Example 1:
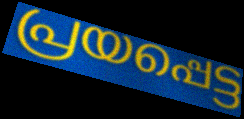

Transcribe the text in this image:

പ്രയപ്പെട്ട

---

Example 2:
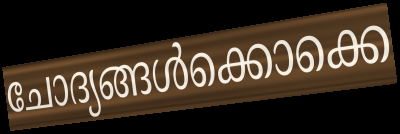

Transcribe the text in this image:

ചോദ്യങ്ങൾക്കൊക്കെ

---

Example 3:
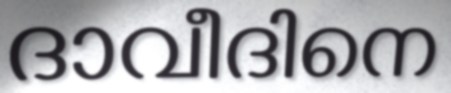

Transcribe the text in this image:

ദാവീദിനെ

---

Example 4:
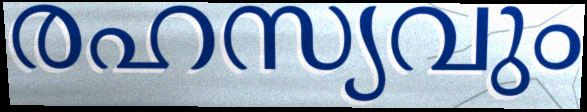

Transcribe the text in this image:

രഹസ്യവും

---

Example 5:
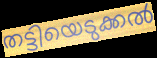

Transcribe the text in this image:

തട്ടിയെടുക്കൽ